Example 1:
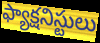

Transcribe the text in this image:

ఫ్యాక్షనిస్టులు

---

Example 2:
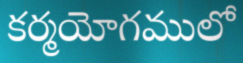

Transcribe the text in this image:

కర్మయోగములో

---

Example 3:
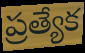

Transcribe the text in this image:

ప్రత్యేక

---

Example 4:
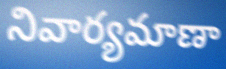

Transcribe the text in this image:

నివార్యమాణా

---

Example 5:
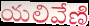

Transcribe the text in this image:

యలివేణి